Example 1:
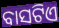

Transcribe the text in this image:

ବାସଟିଏ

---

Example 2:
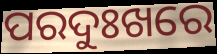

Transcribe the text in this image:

ପରଦୁଃଖରେ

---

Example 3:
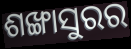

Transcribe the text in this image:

ଶଙ୍ଖାସୁରର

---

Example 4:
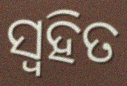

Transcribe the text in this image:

ସ୍ୱହିତ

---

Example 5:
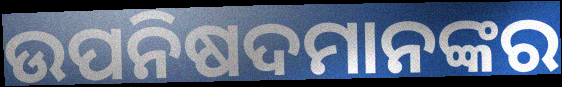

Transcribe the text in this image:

ଉପନିଷଦମାନଙ୍କର